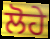
ਲੋਹੇ